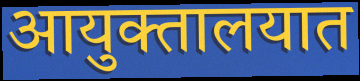
आयुक्तालयात